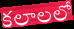
కలాలలో